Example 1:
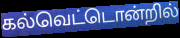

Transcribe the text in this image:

கல்வெட்டொன்றில்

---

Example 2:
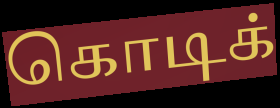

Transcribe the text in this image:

கொடிக்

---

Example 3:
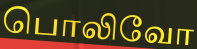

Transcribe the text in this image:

பொலிவோ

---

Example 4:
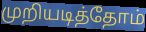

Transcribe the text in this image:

முறியடித்தோம்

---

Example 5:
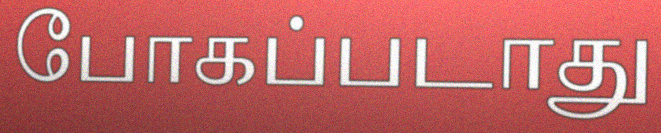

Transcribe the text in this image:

போகப்படாது